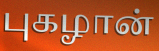
புகழான்